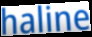
haline